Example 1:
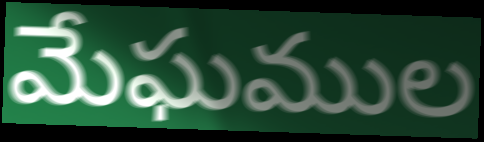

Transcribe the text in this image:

మేఘముల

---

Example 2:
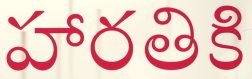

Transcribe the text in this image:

హారతికి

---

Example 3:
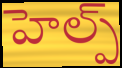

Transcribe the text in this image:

హెల్ప్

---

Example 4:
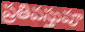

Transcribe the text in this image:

ప్రతివస్తువూ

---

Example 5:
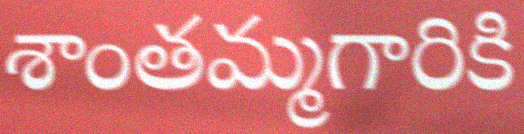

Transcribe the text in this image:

శాంతమ్మగారికి